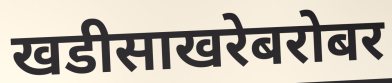
खडीसाखरेबरोबर